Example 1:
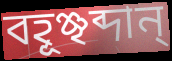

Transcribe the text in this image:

বহূঞ্ছব্দান্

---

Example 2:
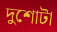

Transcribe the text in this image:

দুশোটা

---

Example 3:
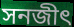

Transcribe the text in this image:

সনজীৎ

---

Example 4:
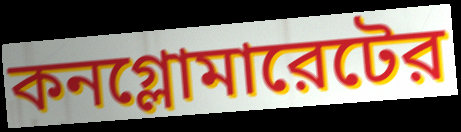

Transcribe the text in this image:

কনগ্লোমারেটের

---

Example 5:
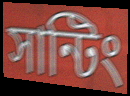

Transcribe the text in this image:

সান্টিং